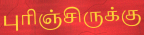
புரிஞ்சிருக்கு